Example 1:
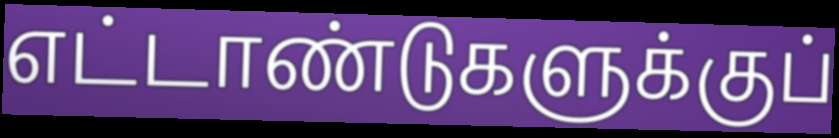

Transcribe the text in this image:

எட்டாண்டுகளுக்குப்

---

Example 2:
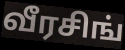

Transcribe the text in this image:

வீரசிங்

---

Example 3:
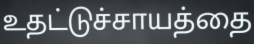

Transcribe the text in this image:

உதட்டுச்சாயத்தை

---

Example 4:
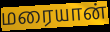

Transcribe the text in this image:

மரையான்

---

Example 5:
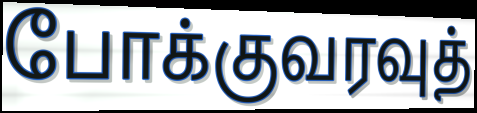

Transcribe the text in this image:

போக்குவரவுத்